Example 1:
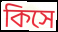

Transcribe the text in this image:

কিসে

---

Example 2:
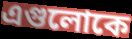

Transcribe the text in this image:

এগুলোকে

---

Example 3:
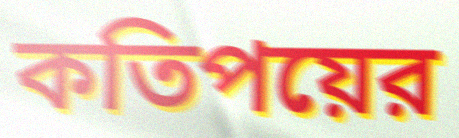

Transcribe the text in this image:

কতিপয়ের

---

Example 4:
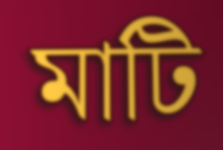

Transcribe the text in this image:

মাটি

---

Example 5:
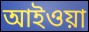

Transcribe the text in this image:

আইওয়া